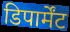
डिपार्मेंट